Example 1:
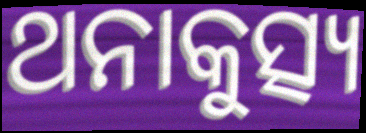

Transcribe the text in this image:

ଥନାକୁତ୍ସ୍ୟ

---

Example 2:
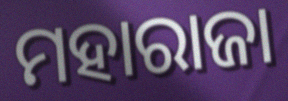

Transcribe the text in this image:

ମହାରାଜା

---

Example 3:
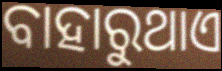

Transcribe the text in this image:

ବାହାରୁଥାଏ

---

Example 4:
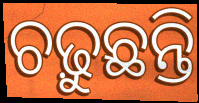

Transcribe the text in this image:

ଚଢ଼ୁଛନ୍ତି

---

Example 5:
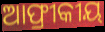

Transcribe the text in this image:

ଆଫ୍ରୀକୀୟ